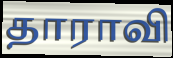
தாராவி